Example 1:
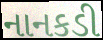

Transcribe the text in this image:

નાનકડી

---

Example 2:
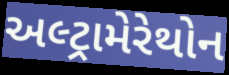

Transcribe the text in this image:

અલ્ટ્રામેરેથોન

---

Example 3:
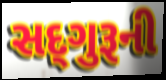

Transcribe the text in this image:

સદ્‌ગુરૂની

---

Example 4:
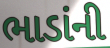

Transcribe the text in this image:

ભાડાંની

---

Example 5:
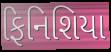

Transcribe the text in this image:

ફિનિશિયા